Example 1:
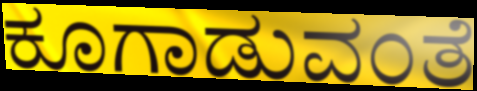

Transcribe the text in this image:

ಕೂಗಾಡುವಂತೆ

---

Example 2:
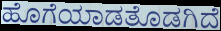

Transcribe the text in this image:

ಹೊಗೆಯಾಡತೊಡಗಿದೆ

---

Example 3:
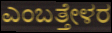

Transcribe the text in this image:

ಎಂಬತ್ತೇಳರ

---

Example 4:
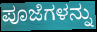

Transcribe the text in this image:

ಪೂಜೆಗಳನ್ನು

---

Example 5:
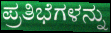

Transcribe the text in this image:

ಪ್ರತಿಭೆಗಳನ್ನು